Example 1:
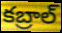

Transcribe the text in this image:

కబ్రాల్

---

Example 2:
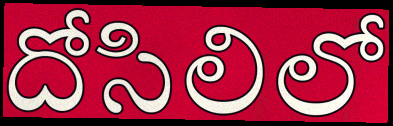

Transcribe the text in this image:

దోసిలిలో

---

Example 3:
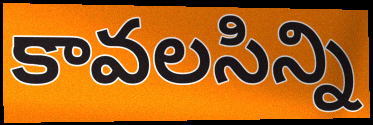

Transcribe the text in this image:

కావలసిన్ని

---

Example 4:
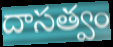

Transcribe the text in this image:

దాసత్వం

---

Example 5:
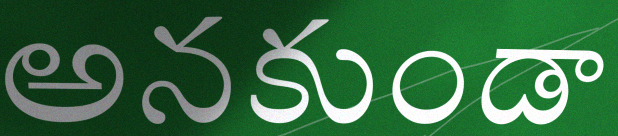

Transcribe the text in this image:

అనకుండా